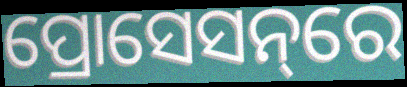
ପ୍ରୋସେସନ୍‌ରେ